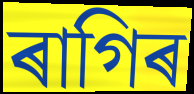
ৰাগিৰ